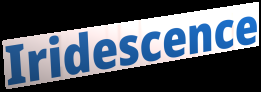
Iridescence